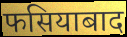
फसियाबाद